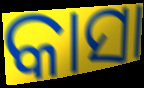
କାସା